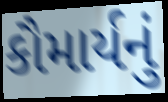
કૌમાર્યનું